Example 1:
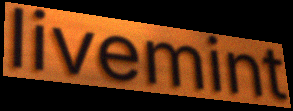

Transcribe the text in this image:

livemint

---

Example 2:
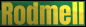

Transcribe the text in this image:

Rodmell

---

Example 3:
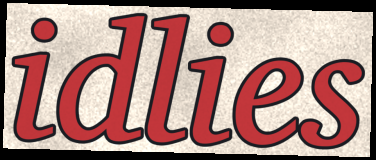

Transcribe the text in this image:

idlies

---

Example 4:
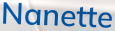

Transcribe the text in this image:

Nanette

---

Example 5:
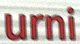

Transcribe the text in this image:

urni